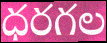
ధరగల